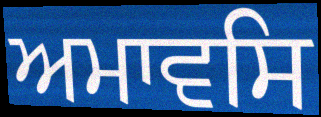
ਅਮਾਵਸਿ